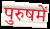
पुरुषमें